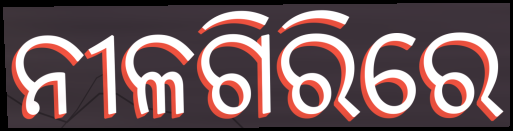
ନୀଳଗିରିରେ